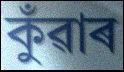
কুঁৱাৰ